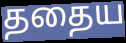
ததைய